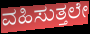
ವಹಿಸುತ್ತಲೇ